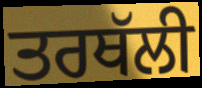
ਤਰਥੱਲੀ